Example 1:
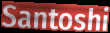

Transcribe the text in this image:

Santoshi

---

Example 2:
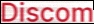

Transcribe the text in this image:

Discom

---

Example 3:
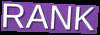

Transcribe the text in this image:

RANK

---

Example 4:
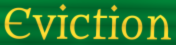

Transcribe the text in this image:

Eviction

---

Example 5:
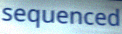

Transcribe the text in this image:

sequenced